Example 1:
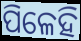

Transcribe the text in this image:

ପିଳେହି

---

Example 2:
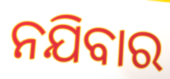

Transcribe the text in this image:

ନଯିବାର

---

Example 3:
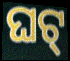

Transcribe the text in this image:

ଘଟ୍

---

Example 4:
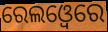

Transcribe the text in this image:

ରେଲଓ୍ୱେରେ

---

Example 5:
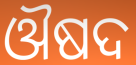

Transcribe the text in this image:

ଔଷଦ